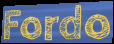
Fordo